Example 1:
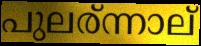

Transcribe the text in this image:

പുലര്ന്നാല്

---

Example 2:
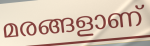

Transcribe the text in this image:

മരങ്ങളാണ്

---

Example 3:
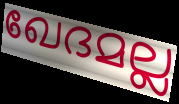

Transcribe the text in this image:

ഖേദമല്ല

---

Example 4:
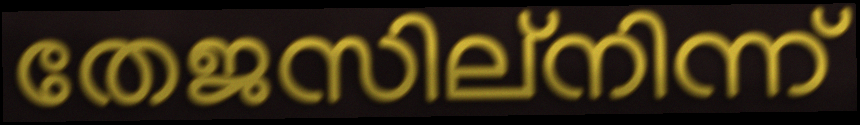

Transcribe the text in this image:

തേജസില്നിന്ന്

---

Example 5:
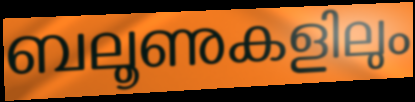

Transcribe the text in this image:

ബലൂണുകളിലും